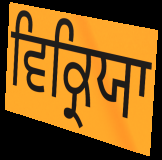
ਵਿਕ੍ਰਿਯਾ